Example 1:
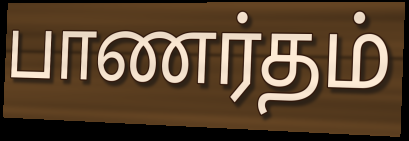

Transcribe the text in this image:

பாணர்தம்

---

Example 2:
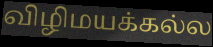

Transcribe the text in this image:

விழிமயக்கல்ல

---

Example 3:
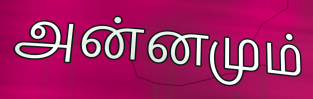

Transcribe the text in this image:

அன்னமும்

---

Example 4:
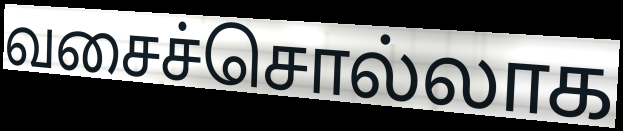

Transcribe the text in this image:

வசைச்சொல்லாக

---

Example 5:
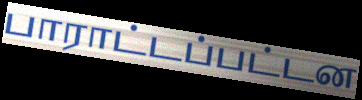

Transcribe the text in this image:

பாராட்டப்பட்டன